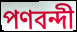
পণবন্দী